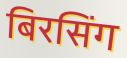
बिरसिंग